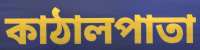
কাঠালপাতা